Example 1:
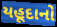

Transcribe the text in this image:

યહૂદાનો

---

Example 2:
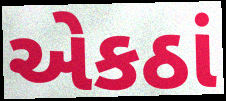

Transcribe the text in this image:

એકઠાં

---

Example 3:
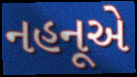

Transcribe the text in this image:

નહનૂએ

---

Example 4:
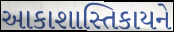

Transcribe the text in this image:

આકાશાસ્તિકાયને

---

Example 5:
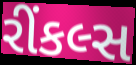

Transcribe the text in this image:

રીંકલ્સ